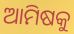
ଆମିଷକୁ